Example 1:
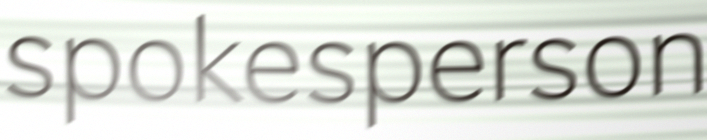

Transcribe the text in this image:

spokesperson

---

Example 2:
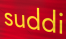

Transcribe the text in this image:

suddi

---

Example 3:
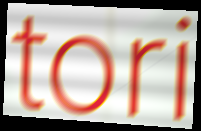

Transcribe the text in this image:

tori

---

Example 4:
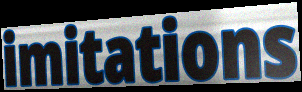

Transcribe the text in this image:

imitations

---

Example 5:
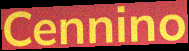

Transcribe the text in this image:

Cennino